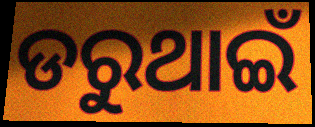
ଡରୁଥାଇଁ